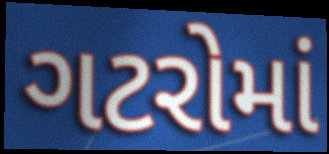
ગટરોમાં